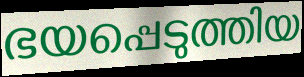
ഭയപ്പെടുത്തിയ